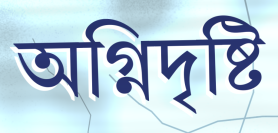
অগ্নিদৃষ্টি